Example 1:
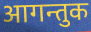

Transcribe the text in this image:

आगन्तुक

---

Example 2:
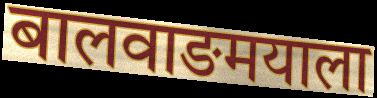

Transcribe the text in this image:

बालवाङमयाला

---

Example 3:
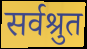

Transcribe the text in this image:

सर्वश्रुत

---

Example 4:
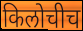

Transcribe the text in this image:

किलोचीच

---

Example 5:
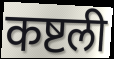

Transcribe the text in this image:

कष्टली